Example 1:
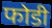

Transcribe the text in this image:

फोडी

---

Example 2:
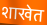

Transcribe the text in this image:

शाखेत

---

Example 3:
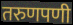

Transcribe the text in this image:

तरुणपणी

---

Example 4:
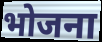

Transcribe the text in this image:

भोजना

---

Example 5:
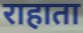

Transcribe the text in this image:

राहाता